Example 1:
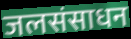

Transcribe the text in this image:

जलसंसाधन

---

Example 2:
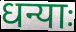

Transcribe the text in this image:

धन्याः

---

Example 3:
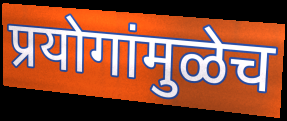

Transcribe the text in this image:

प्रयोगांमुळेच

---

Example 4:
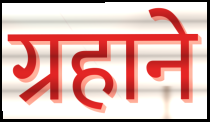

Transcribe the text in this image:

ग्रहाने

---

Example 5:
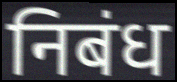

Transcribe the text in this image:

निबंध